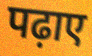
पढ़ाए